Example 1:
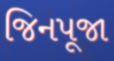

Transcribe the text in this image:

જિનપૂજા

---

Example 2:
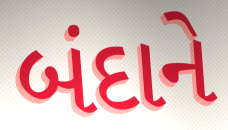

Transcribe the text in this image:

બંદાને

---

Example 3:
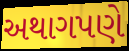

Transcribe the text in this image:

અથાગપણે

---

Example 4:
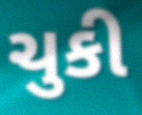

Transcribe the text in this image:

ચુકી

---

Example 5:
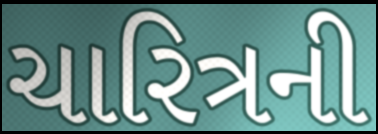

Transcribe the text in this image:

ચારિત્રની